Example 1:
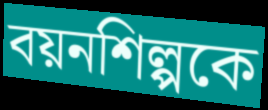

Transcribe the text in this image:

বয়নশিল্পকে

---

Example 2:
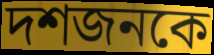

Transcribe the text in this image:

দশজনকে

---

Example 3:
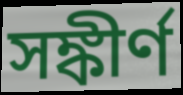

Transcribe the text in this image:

সঙ্কীর্ণ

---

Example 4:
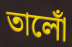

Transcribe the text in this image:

তালোঁ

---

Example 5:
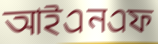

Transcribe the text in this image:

আইএনএফ